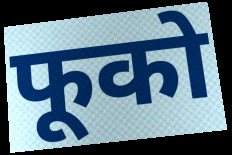
फूको